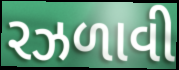
રઝળાવી